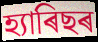
হ্যাৰিছৰ